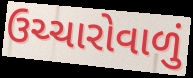
ઉચ્ચારોવાળું